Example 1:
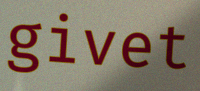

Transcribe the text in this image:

givet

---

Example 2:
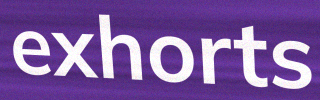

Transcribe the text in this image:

exhorts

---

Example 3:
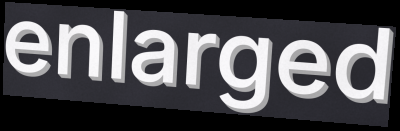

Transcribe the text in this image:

enlarged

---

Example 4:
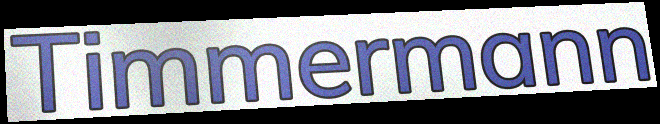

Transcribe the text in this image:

Timmermann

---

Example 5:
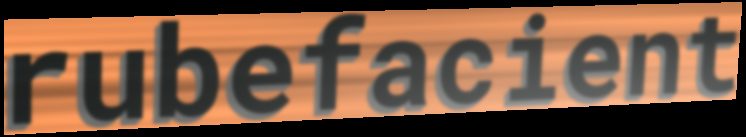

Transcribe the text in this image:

rubefacient